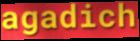
agadich